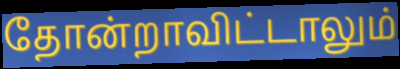
தோன்றாவிட்டாலும்